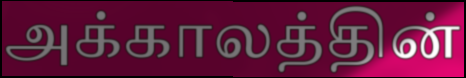
அக்காலத்தின்